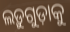
ଲଡ଼ୁଗୁଡ଼ାକୁ